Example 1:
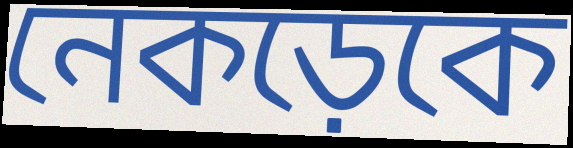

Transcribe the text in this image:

নেকড়েকে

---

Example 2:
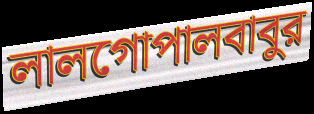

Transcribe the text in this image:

লালগোপালবাবুর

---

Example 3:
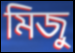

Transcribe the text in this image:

মিজু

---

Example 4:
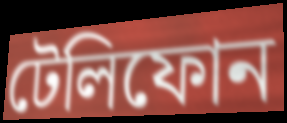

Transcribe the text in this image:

টেলিফোন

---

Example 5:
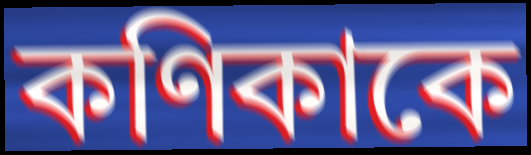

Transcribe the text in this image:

কণিকাকে